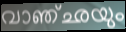
വാഞ്ഛയും